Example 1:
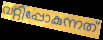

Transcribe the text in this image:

വറ്റിപ്പോകുന്നത്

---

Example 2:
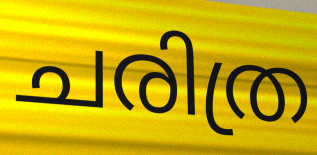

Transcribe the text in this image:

ചരിത്ര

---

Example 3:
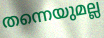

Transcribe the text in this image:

തന്നെയുമല്ല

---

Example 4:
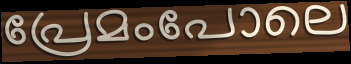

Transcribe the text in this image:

പ്രേമംപോലെ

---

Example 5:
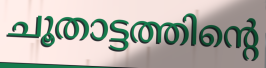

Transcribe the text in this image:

ചൂതാട്ടത്തിന്റെ